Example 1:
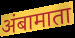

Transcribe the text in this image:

अंबामाता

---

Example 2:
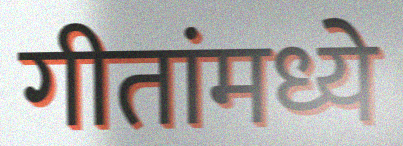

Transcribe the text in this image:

गीतांमध्ये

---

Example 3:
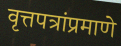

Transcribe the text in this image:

वृत्तपत्रांप्रमाणे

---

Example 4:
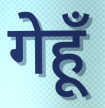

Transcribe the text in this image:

गेहूँ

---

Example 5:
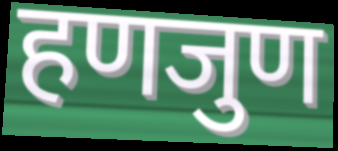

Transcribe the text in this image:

हणजुण